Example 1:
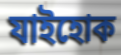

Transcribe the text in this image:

যাইহোক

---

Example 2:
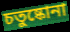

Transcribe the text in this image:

চতুষ্কোনা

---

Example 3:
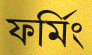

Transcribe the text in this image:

ফর্মিং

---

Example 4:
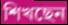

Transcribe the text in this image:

শিখছেন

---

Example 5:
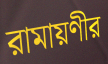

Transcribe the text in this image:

রামায়ণীর